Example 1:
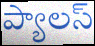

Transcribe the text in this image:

ప్యాలస్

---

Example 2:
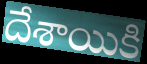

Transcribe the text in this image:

దేశాయికి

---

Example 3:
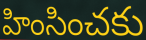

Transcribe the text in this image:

హింసించకు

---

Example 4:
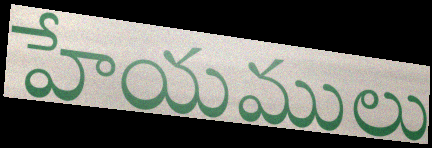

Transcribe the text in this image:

హేయములు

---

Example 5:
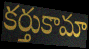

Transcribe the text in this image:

కర్తుకామా